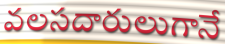
వలసదారులుగానే